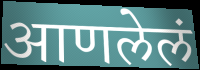
आणलेलं